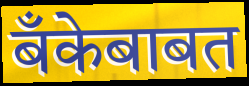
बँकेबाबत